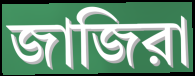
জাজিরা